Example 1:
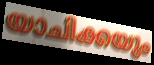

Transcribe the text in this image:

യാചിക്കയും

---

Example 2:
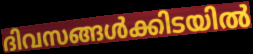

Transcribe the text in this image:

ദിവസങ്ങൾക്കിടയിൽ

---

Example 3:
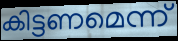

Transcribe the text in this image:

കിട്ടണമെന്ന്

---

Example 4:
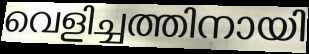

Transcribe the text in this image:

വെളിച്ചത്തിനായി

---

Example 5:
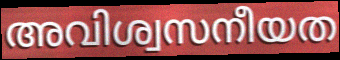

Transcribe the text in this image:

അവിശ്വസനീയത